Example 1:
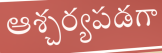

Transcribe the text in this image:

ఆశ్చర్యపడగా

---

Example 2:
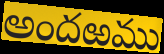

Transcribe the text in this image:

అందఱము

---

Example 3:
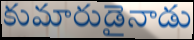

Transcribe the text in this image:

కుమారుడైనాడు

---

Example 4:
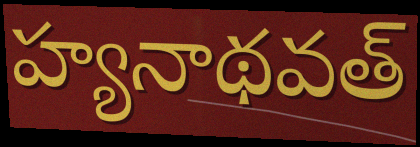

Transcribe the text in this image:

హ్యనాథవత్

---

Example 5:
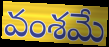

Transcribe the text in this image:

వంశమే